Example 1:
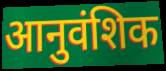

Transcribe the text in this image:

आनुवंशिक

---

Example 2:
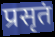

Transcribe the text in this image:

प्रसृतं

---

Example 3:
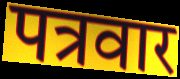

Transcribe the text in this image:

पत्रवार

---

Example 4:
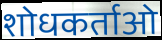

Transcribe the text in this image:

शोधकर्ताओ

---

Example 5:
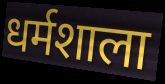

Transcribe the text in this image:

धर्मशाला